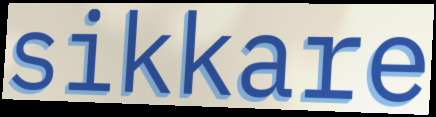
sikkare